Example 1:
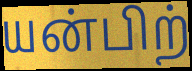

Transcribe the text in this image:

யன்பிற்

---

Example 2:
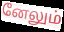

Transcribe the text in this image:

னேலும்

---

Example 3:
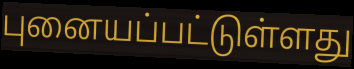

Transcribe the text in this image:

புனையப்பட்டுள்ளது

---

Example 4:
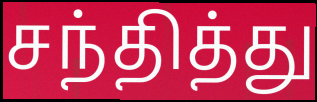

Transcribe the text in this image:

சந்தித்து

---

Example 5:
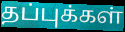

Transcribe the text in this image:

தப்புக்கள்